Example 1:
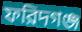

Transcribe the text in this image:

ফরিদগঞ্জ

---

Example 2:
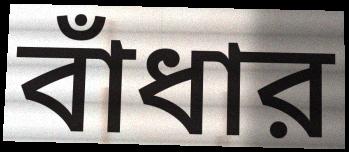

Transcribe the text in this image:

বাঁধার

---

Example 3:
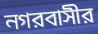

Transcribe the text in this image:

নগরবাসীর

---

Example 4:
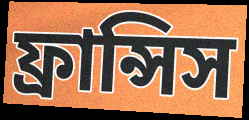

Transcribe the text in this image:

ফ্রান্সিস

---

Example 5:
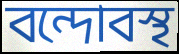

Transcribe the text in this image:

বন্দোবস্থ